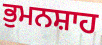
ਭੁਮਨਸ਼ਾਹ